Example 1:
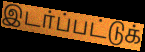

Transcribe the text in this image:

இடர்ப்பட்டுக்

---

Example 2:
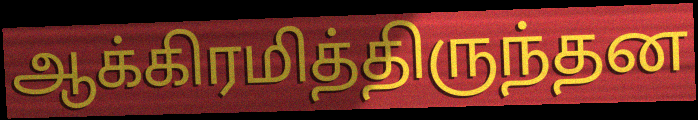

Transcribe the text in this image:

ஆக்கிரமித்திருந்தன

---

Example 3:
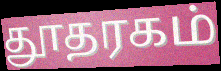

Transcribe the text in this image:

தூதரகம்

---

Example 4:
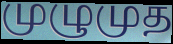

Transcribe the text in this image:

முழுமுத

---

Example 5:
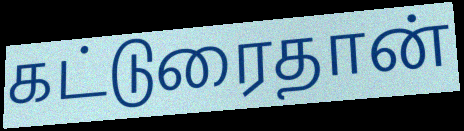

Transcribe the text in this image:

கட்டுரைதான்